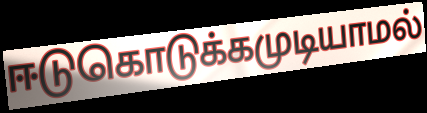
ஈடுகொடுக்கமுடியாமல்